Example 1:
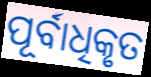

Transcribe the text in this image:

ପୂର୍ବାଧିକୃତ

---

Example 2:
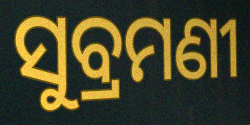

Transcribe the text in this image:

ସୁବ୍ରମଣୀ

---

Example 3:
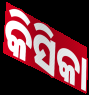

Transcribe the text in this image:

କିସିକା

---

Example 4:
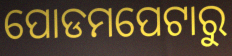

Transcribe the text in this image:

ପୋଡମପେଟାରୁ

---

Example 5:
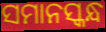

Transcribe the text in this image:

ସମାନସ୍କନ୍ଧ